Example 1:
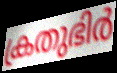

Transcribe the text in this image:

ക്രതുഭിർ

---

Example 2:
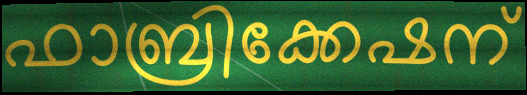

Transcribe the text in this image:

ഫാബ്രിക്കേഷന്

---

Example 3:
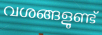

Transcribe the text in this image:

വശങ്ങളുണ്ട്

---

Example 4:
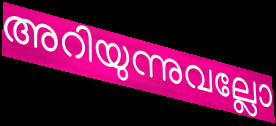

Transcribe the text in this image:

അറിയുന്നുവല്ലോ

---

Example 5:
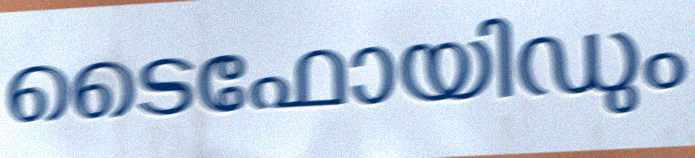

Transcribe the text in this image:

ടൈഫോയിഡും